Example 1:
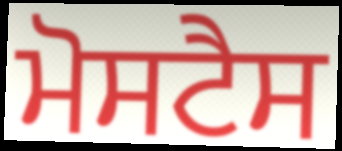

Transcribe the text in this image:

ਮੋਸਟੈਸ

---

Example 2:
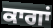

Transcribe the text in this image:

ਕਾਗਾਂ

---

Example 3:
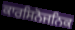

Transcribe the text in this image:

ਕਾਰਸਿਨੋਜਨਿਕ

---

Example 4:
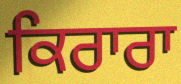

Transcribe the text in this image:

ਕਿਰਾਰਾ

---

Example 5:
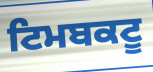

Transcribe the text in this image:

ਟਿਮਬਕਟੂ